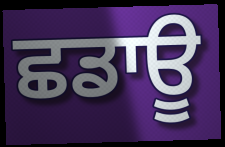
ਛਡਾਊ